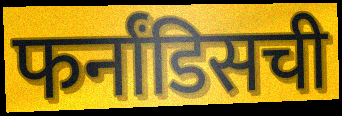
फर्नांडिसची